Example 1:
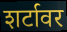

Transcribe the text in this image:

शर्टावर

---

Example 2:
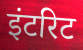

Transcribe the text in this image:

इंटरिट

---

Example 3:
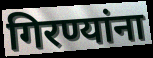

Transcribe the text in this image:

गिरण्यांना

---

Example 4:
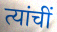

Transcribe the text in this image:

त्यांचीं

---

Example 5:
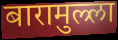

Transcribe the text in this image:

बारामुल्ला